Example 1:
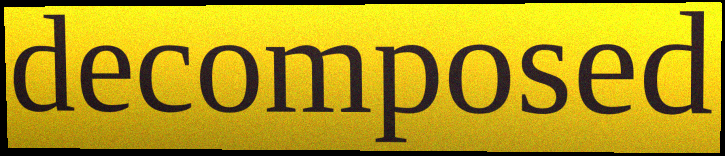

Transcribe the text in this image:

decomposed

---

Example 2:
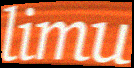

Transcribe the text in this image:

limu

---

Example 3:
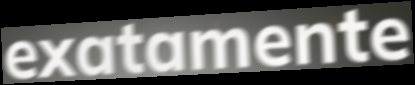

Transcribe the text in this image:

exatamente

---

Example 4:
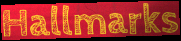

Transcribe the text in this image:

Hallmarks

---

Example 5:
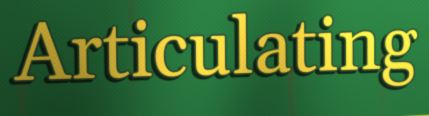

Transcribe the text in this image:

Articulating